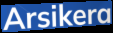
Arsikera